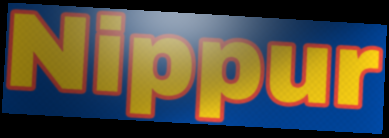
Nippur